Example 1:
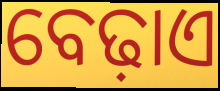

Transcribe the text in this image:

ବେଢ଼ାଏ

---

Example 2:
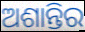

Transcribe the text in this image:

ଅଶାନ୍ତିର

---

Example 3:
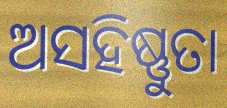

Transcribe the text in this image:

ଅସହିଷ୍ଣୁତା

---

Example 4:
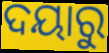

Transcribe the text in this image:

ଦୟାରୁ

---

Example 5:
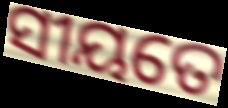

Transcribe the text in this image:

ସୀୟତେ